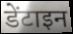
डेंटाइन